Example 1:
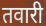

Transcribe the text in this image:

तवारी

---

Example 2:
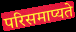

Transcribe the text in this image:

परिसमाप्यते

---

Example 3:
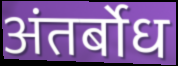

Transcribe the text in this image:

अंतर्बोध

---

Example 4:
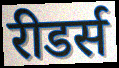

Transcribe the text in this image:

रीडर्स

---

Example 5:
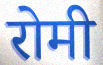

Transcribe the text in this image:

रोमी